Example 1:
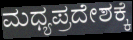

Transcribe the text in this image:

ಮಧ್ಯಪ್ರದೇಶಕ್ಕೆ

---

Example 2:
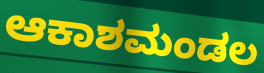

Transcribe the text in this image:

ಆಕಾಶಮಂಡಲ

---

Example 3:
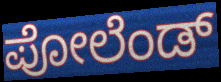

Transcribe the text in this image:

ಪೋಲೆಂಡ್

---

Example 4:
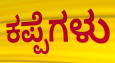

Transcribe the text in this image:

ಕಪ್ಪೆಗಳು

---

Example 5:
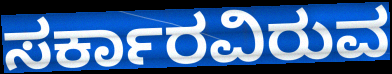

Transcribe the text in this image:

ಸರ್ಕಾರವಿರುವ